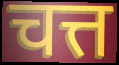
चत्त